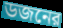
ডজনের